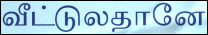
வீட்டுலதானே